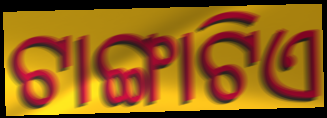
ଟାଙ୍ଗାଟିଏ